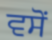
ਵਸੋਂ